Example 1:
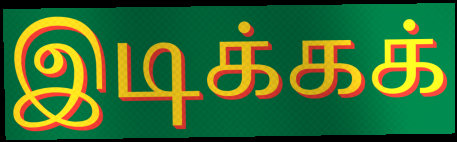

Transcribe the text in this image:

இடிக்கக்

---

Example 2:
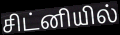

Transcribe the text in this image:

சிட்னியில்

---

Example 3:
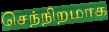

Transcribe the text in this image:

செந்நிறமாக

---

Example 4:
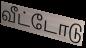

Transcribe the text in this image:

வீட்டோடு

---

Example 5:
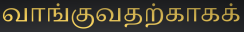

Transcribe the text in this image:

வாங்குவதற்காகக்